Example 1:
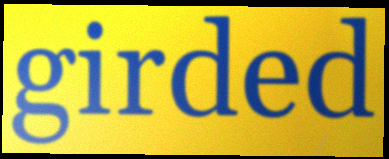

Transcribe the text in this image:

girded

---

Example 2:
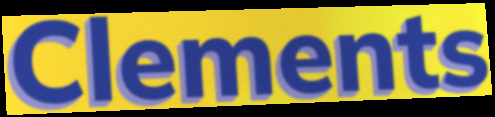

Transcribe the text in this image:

Clements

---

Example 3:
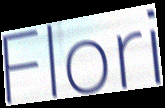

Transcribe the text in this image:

Flori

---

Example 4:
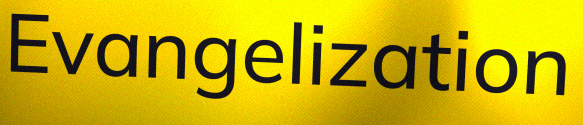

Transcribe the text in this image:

Evangelization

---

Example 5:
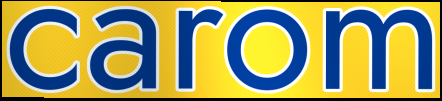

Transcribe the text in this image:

carom